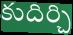
కుదిర్చి